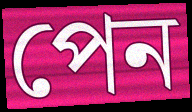
পেন